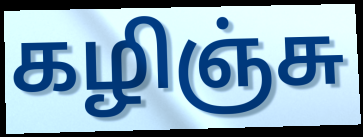
கழிஞ்சு